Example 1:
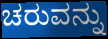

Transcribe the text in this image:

ಚರುವನ್ನು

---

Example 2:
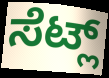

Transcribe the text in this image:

ಸೆಟ್ಲ್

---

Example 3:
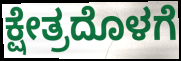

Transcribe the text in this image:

ಕ್ಷೇತ್ರದೊಳಗೆ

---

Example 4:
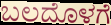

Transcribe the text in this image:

ಬಲದೊಳಗೆ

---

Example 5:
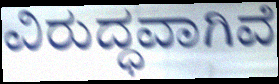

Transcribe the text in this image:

ವಿರುದ್ಧವಾಗಿವೆ